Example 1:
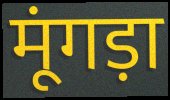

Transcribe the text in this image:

मूंगड़ा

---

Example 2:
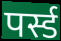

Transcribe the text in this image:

पर्स्ड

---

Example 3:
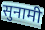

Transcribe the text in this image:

सुनामी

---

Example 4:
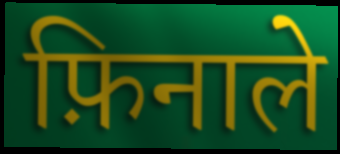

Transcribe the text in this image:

फ़िनाले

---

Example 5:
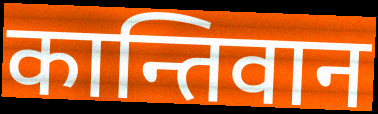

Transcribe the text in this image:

कान्तिवान